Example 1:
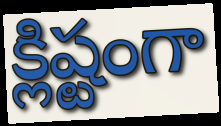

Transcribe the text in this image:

క్లిష్టంగా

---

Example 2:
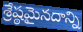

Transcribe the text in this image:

శ్రేష్ఠమైనదాన్ని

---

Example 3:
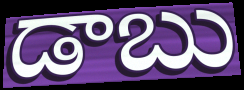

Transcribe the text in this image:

డాబు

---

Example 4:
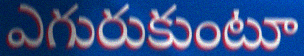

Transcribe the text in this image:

ఎగురుకుంటూ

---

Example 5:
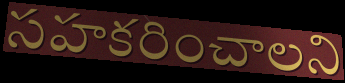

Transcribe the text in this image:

సహకరించాలని